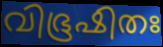
വിഭൂഷിതഃ